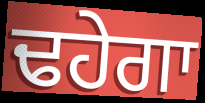
ਢਹੇਗਾ